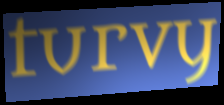
turvy